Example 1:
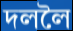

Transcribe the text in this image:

দললৈ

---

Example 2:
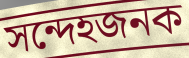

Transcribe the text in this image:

সন্দেহজনক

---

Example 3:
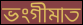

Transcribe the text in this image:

ভংগীমাত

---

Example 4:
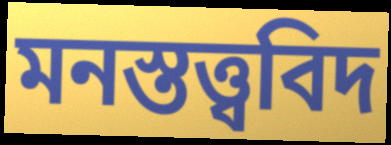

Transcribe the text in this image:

মনস্তত্ত্ববিদ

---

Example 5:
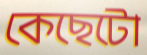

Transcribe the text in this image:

কেছেটো